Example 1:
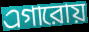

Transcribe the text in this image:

এগারোয়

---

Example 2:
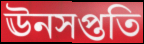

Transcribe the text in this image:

ঊনসপ্ততি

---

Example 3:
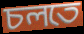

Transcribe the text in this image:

চলতে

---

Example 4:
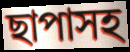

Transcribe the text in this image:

ছাপাসহ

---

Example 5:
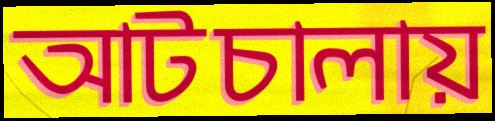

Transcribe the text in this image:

আটচালায়